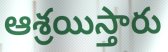
ఆశ్రయిస్తారు